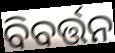
ବିବର୍ତ୍ତନ